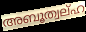
അബൂത്വല്ഹ